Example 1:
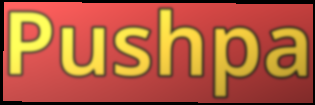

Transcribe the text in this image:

Pushpa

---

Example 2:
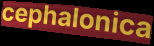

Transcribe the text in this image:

cephalonica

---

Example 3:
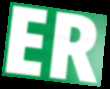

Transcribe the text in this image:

ER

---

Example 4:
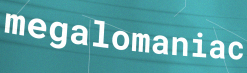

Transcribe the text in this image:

megalomaniac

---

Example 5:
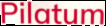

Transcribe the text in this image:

Pilatum